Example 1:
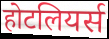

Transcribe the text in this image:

होटलियर्स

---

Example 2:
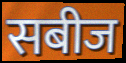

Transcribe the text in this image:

सबीज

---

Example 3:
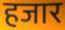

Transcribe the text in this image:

हजार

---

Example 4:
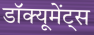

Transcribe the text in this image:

डॉक्यूमेंट्स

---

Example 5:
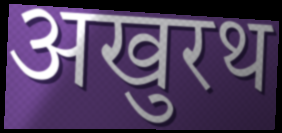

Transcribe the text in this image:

अखुरथ